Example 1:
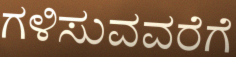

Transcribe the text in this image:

ಗಳಿಸುವವರೆಗೆ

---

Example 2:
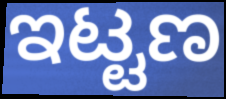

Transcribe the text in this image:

ಇಟ್ಟಣ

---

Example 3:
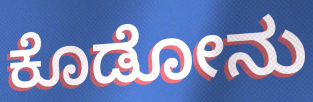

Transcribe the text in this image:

ಕೊಡೋನು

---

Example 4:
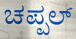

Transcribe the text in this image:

ಚಪ್ಪಲ್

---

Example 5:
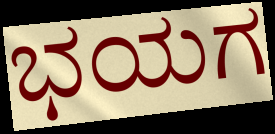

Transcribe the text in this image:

ಭಯಗ